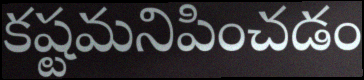
కష్టమనిపించడం